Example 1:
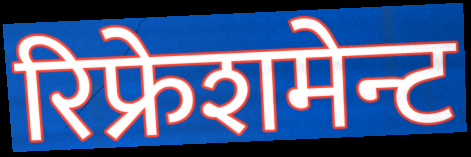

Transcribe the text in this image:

रिफ्रेशमेन्ट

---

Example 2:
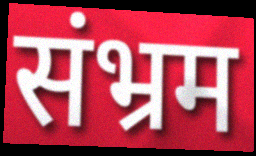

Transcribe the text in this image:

संभ्रम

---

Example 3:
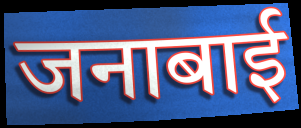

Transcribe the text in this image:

जनाबाई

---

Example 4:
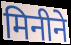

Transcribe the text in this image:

मिनीने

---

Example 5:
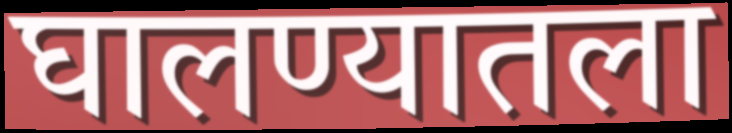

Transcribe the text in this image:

घालण्यातला